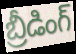
బ్రీడింగ్